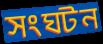
সংঘটন